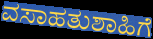
ವಸಾಹತುಶಾಹಿಗೆ